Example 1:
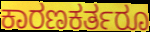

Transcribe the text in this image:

ಕಾರಣಕರ್ತರೂ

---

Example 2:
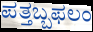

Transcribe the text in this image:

ಪತ್ತಬ್ಬಫಲಂ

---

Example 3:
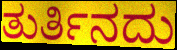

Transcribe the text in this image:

ತುರ್ತಿನದು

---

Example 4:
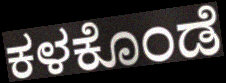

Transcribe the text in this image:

ಕಳಕೊಂಡೆ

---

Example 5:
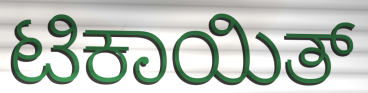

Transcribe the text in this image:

ಟಿಕಾಯಿತ್